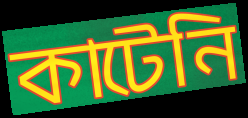
কাটেনি